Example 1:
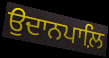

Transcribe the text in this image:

ਉਦਾਨਪਾਲ਼ਿ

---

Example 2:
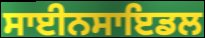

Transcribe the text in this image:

ਸਾਈਨਸਾਇਡਲ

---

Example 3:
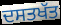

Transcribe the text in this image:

ਦਸਤਖੱਤ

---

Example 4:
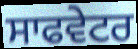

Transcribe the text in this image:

ਸਾਫਵੇਟਰ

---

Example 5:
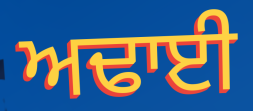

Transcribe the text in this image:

ਅਢਾਈ